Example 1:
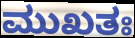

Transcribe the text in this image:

ಮುಖತಃ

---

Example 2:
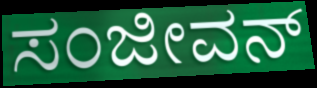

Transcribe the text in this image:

ಸಂಜೀವನ್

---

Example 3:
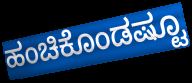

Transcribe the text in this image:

ಹಂಚಿಕೊಂಡಷ್ಟೂ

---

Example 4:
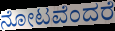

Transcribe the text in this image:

ನೋಟವೆಂದರೆ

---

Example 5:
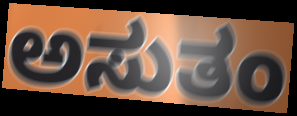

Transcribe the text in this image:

ಅಸುತಂ